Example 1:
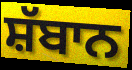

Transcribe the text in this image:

ਸ਼ੱਬਾਨ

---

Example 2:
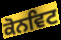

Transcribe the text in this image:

ਕੋਨਵਿਟ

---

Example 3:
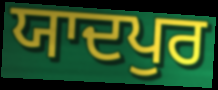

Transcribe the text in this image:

ਯਾਦਪੁਰ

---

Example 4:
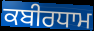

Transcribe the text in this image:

ਕਬੀਰਧਾਮ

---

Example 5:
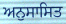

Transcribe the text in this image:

ਅਨੁਸਾਸਿਤ